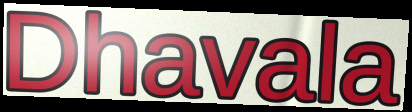
Dhavala